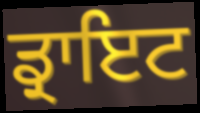
ਡ੍ਰਾਇਟ